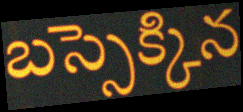
బస్సెక్కిన